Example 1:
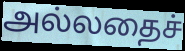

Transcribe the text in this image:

அல்லதைச்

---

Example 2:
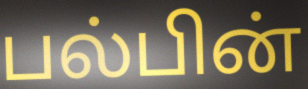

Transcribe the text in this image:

பல்பின்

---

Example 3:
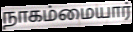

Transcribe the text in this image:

நாகம்மையார்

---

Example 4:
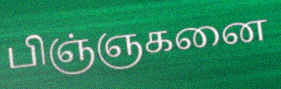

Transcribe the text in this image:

பிஞ்ஞகனை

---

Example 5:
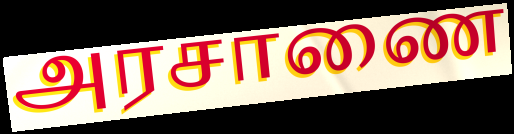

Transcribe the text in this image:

அரசாணை